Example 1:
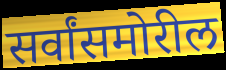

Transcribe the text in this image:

सर्वांसमोरील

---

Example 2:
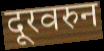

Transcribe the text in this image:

दूरवरुन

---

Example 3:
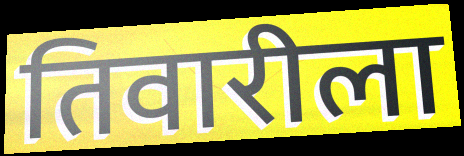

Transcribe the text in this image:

तिवारीला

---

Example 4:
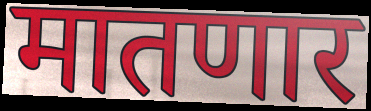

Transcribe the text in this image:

मातणार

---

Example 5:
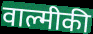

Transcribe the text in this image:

वाल्मीकी